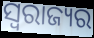
ସ୍ବରାଜ୍ୟର